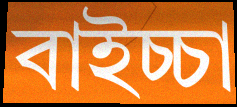
বাইচ্চা